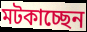
মটকাচ্ছেন